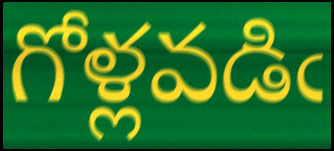
గోళ్లవడిఁ